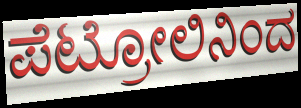
ಪೆಟ್ರೋಲಿನಿಂದ